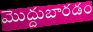
మొద్దుబారడం